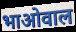
भाओवाल